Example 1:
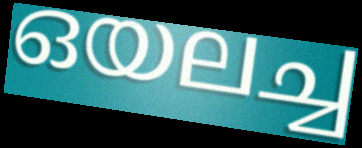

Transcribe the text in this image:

ഒയലച്ച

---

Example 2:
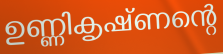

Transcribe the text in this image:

ഉണ്ണികൃഷ്‌ണന്റെ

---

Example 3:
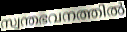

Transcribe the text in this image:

സ്വന്തഭവനത്തിൽ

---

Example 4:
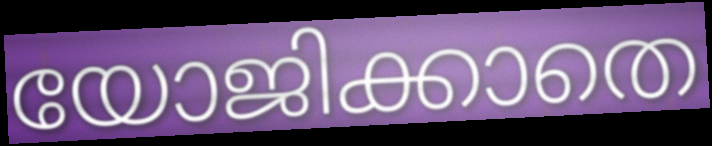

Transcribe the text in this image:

യോജിക്കാതെ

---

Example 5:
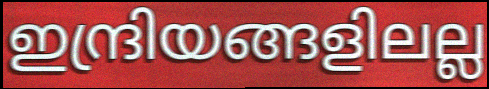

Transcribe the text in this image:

ഇന്ദ്രിയങ്ങളിലല്ല